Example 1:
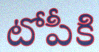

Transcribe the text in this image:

టోపీకి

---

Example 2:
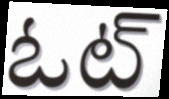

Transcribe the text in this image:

ఓట్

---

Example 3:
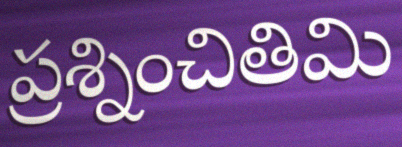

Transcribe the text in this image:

ప్రశ్నించితిమి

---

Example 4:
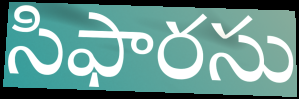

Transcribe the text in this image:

సిఫారసు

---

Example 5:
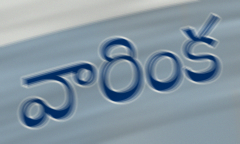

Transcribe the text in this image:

వారింక